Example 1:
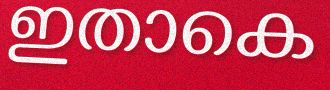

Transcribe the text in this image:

ഇതാകെ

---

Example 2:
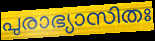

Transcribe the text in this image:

പുരാഭ്യാസിതഃ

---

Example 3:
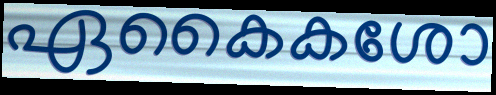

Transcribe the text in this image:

ഏകൈകശോ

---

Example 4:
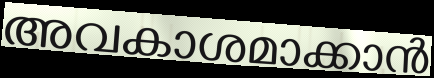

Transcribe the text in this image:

അവകാശമാക്കാൻ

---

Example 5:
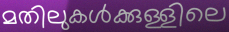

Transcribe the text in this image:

മതിലുകൾക്കുള്ളിലെ